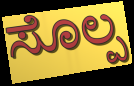
ಸೊಲ್ಪ